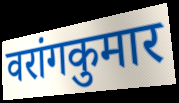
वरांगकुमार